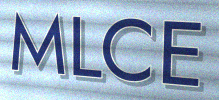
MLCE